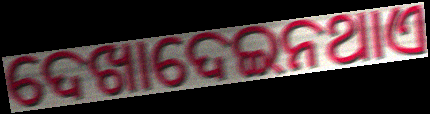
ଦେଖାଦେଇନଥାଏ